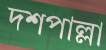
দশপাল্লা